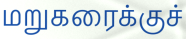
மறுகரைக்குச்